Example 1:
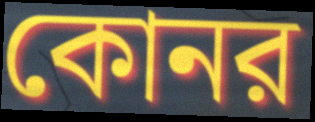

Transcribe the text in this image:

কোনর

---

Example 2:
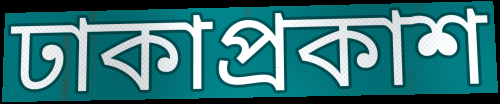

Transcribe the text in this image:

ঢাকাপ্রকাশ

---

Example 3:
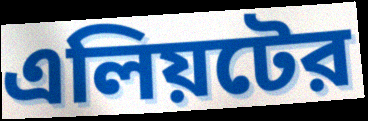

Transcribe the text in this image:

এলিয়টের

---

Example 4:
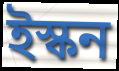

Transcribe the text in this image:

ইস্কন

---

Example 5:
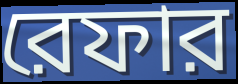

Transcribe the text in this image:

রেফার